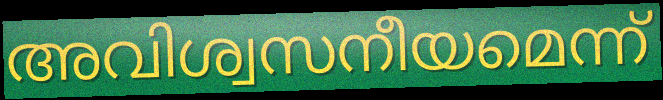
അവിശ്വസനീയമെന്ന്